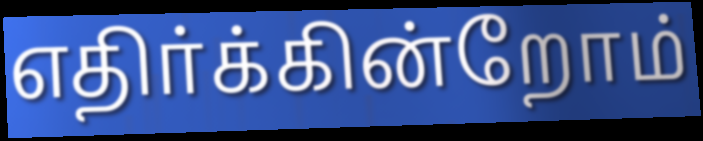
எதிர்க்கின்றோம்